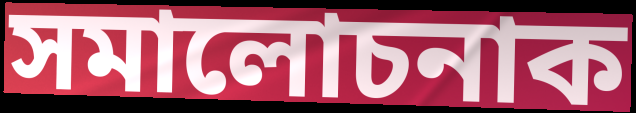
সমালোচনাক